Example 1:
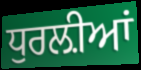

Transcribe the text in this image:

ਧੁਰਲ਼ੀਆਂ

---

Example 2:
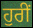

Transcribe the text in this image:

ਹੁਰੀਂ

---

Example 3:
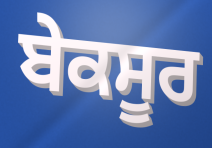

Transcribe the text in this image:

ਬੇਕਸੂਰ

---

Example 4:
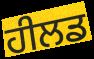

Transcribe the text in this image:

ਹੀਲਡ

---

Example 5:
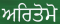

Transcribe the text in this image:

ਅਰਿਤੋਮੋ